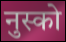
नुस्को